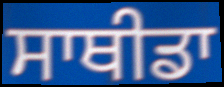
ਸਾਥੀਡਾ